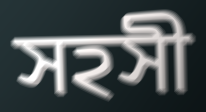
সহসী